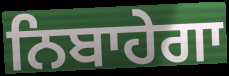
ਨਿਬਾਹੇਗਾ